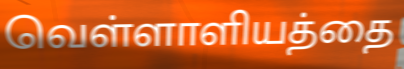
வெள்ளாளியத்தை